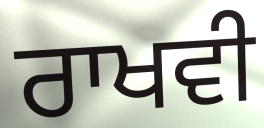
ਰਾਖਵੀ